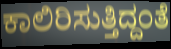
ಕಾಲಿರಿಸುತ್ತಿದ್ದಂತೆ